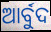
ଆର୍ବୁଦ